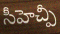
సీహెచ్పీ